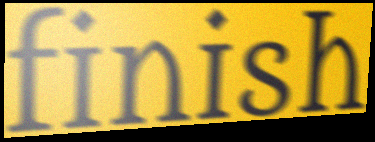
finish